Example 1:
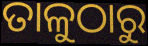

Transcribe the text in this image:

ତାଳୁଠାରୁ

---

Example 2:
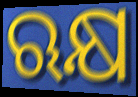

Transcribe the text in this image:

ଋକ୍ଷ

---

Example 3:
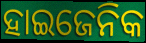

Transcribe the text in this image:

ହାଇଜେନିକ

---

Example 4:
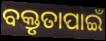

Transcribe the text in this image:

ବକ୍ତୃତାପାଇଁ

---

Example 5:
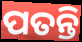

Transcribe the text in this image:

ପତନ୍ତି